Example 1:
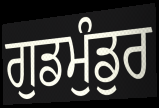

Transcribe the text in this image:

ਗੁਡਮੁੰਡੁਰ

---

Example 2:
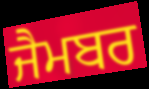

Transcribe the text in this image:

ਜੈਮਬਰ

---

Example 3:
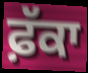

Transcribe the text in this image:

ਫ਼ੱਕਾ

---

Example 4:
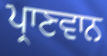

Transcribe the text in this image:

ਪ੍ਰਾਣਵਾਨ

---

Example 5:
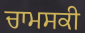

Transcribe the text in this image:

ਚਾਮਸਕੀ